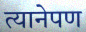
त्यानेपण